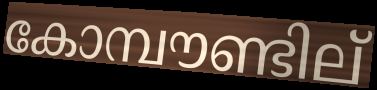
കോമ്പൗണ്ടില്